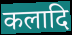
कलादि